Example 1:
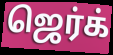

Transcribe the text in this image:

ஜெர்க்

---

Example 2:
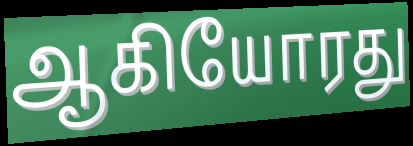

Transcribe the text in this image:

ஆகியோரது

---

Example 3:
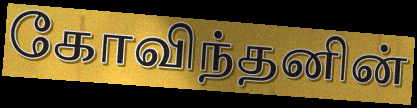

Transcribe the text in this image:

கோவிந்தனின்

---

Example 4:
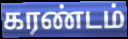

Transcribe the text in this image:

கரண்டம்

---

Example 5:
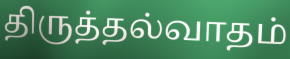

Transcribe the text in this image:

திருத்தல்வாதம்